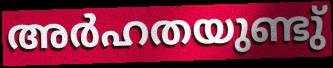
അർഹതയുണ്ടു്